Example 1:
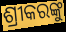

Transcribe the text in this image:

ଶ୍ରୀକରଙ୍କୁ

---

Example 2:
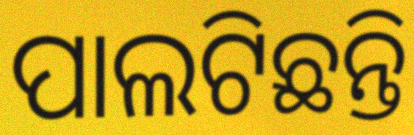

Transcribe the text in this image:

ପାଲଟିଛନ୍ତି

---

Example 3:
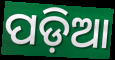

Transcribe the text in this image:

ପଡ଼ିଆ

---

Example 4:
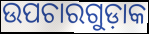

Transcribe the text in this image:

ଉପଚାରଗୁଡ଼ାକ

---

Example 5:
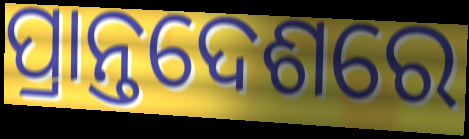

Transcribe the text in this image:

ପ୍ରାନ୍ତଦେଶରେ